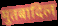
मुतबादिल